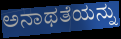
ಅನಾಥತೆಯನ್ನು